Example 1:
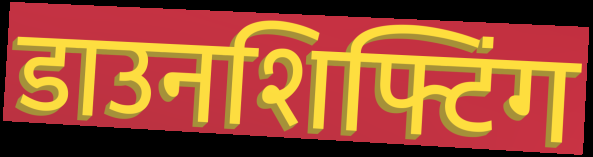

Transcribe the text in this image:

डाउनशिफ्टिंग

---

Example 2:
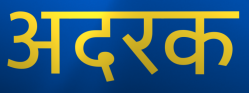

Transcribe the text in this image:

अदरक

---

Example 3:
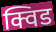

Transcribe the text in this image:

क्विड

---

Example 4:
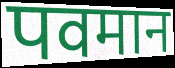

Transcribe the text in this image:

पवमान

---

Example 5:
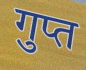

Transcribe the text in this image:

गुप्त